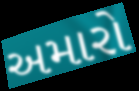
અમારો